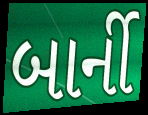
બાર્ની